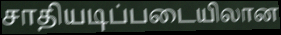
சாதியடிப்படையிலான